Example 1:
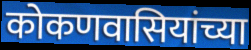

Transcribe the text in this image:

कोकणवासियांच्या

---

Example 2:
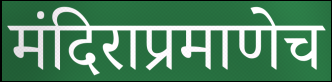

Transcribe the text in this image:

मंदिराप्रमाणेच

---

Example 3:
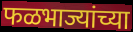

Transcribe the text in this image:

फळभाज्यांच्या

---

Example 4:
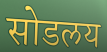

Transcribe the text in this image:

सोडलय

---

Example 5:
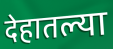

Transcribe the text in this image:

देहातल्या